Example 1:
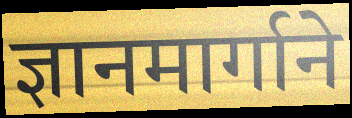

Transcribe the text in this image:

ज्ञानमार्गाने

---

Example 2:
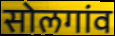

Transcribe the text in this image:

सोलगांव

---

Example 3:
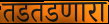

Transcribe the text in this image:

तडतडणारा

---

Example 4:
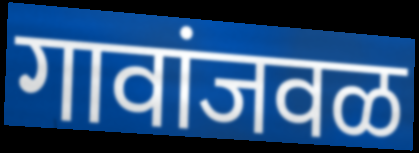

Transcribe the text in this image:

गावांजवळ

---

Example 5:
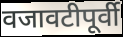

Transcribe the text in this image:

वजावटीपूर्वी